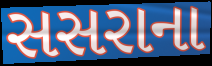
સસરાના